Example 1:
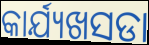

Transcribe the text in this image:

କାର୍ଯ୍ୟଖସଡା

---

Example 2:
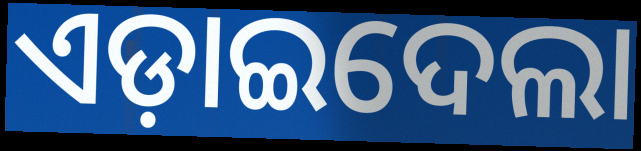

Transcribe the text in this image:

ଏଡ଼ାଇଦେଲା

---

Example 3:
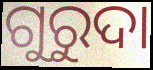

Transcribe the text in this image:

ଗୁରୁଦା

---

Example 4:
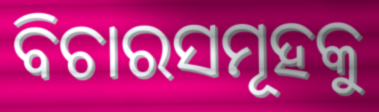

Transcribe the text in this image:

ବିଚାରସମୂହକୁ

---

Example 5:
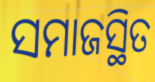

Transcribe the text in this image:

ସମାଜସ୍ଥିତ